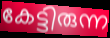
കേട്ടിരുന്ന